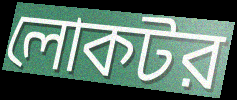
লোকটর